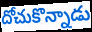
దోచుకొన్నాడు